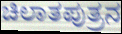
ಚಿಲಾತಪುತ್ರನ